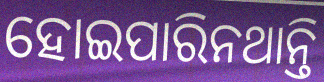
ହୋଇପାରିନଥାନ୍ତି